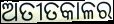
ଅତୀତକାଳର